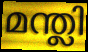
മന്ത്ലി